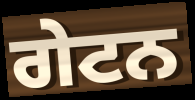
ਗੇਟਨ